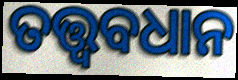
ତତ୍ତ୍ୱବଧାନ